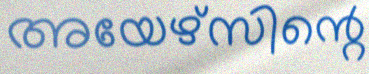
അയേഴ്സിന്റെ